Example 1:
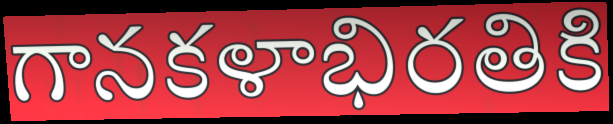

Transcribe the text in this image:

గానకళాభిరతికి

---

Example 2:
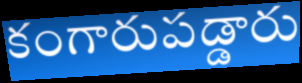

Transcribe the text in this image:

కంగారుపడ్డారు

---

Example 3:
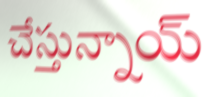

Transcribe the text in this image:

చేస్తున్నాయ్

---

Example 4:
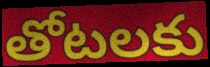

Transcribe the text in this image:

తోటలకు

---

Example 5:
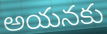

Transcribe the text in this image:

అయనకు